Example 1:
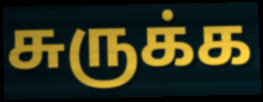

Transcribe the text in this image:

சுருக்க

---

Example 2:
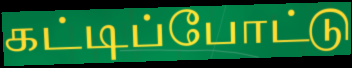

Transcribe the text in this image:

கட்டிப்போட்டு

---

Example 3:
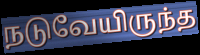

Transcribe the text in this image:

நடுவேயிருந்த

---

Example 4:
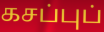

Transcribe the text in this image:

கசப்புப்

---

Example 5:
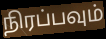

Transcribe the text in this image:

நிரப்பவும்